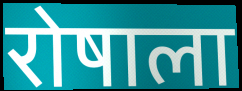
रोषाला